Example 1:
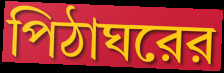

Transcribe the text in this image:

পিঠাঘরের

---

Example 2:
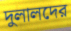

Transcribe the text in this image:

দুলালদের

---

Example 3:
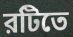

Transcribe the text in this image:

রটিতে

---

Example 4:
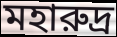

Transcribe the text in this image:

মহারুদ্র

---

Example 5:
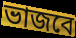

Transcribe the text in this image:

ভাজবে